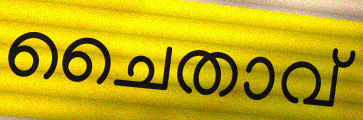
ചൈതാവ്